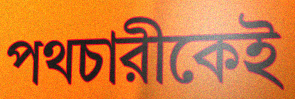
পথচারীকেই